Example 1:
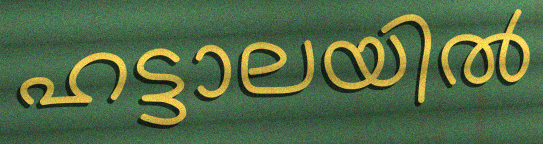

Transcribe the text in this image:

ഹട്ടാലയിൽ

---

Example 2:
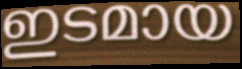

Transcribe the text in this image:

ഇടമായ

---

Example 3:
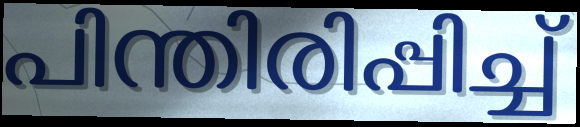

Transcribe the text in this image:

പിന്തിരിപ്പിച്ച്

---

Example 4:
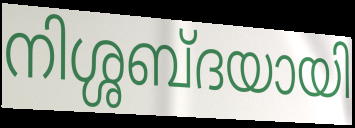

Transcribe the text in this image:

നിശ്ശബ്ദയായി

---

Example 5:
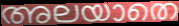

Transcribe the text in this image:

അലയാതെ